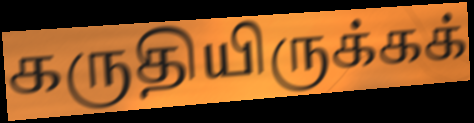
கருதியிருக்கக்